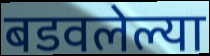
बडवलेल्या